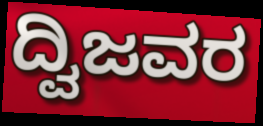
ದ್ವಿಜವರ